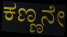
ಕಣ್ಣನೇ